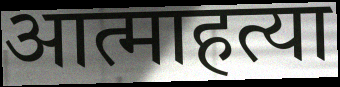
आत्माहत्या